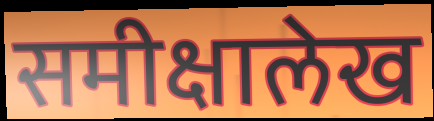
समीक्षालेख